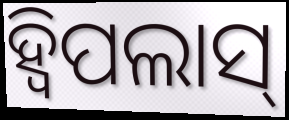
ହ୍ୱିପଲାସ୍